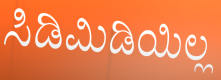
ಸಿಡಿಮಿಡಿಯಿಲ್ಲ